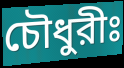
চৌধুরীঃ